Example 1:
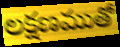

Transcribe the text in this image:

లక్షణముతో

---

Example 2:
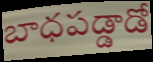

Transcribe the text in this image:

బాధపడ్డాడో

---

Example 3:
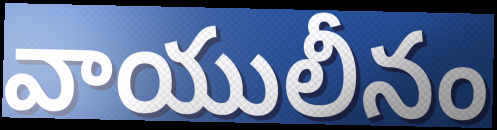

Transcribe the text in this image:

వాయులీనం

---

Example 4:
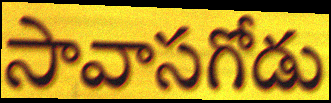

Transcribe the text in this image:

సావాసగోడు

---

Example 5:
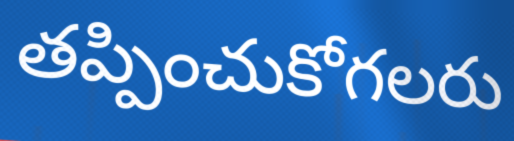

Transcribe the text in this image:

తప్పించుకోగలరు